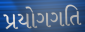
પ્રયોગગતિ